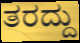
ತರದ್ದು